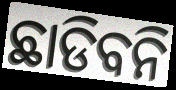
ଛାଡିବନି